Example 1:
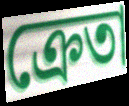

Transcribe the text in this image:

ক্ৰেতা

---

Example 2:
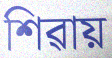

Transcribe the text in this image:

শিৱায়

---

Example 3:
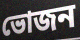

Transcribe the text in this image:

ভোজন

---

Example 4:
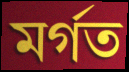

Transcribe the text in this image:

মৰ্গত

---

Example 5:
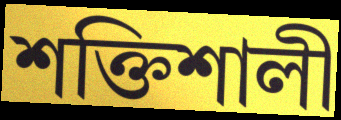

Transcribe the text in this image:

শক্তিশালী